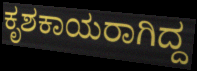
ಕೃಶಕಾಯರಾಗಿದ್ದ